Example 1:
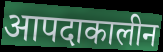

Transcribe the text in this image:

आपदाकालीन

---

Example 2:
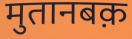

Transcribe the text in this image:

मुतानबक़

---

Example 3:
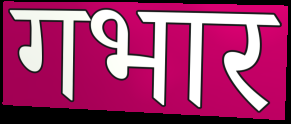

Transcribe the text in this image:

गभार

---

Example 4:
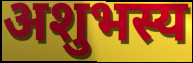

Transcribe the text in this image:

अशुभस्य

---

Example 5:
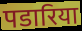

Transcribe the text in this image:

पडारिया